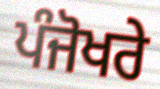
ਪੰਜੋਖਰੇ